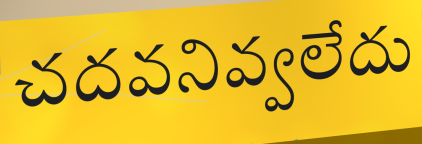
చదవనివ్వలేదు